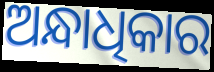
ଅନ୍ଧାଧିକାର